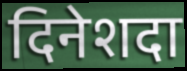
दिनेशदा